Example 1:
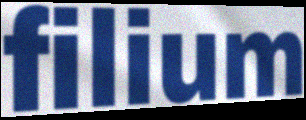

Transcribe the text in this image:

filium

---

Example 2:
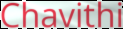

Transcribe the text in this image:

Chavithi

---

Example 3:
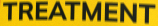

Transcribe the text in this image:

TREATMENT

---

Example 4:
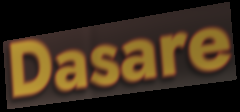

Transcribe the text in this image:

Dasare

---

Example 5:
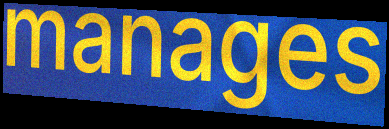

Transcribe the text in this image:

manages